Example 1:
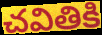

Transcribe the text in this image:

చవితికి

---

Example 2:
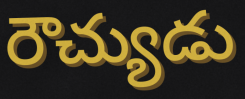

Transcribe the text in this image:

రౌచ్యుడు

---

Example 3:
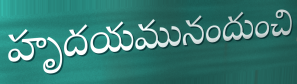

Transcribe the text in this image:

హృదయమునందుంచి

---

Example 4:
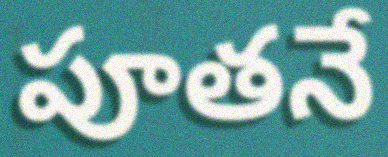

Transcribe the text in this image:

పూతనే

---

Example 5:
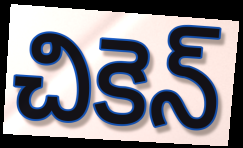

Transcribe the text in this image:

చికెన్